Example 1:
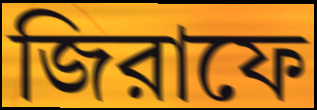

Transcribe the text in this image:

জিরাফে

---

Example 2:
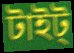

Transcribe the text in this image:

টাইট্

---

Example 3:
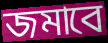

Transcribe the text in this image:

জমাবে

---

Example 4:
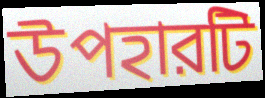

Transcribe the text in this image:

উপহারটি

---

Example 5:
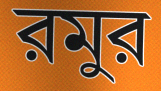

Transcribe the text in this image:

রমুর